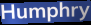
Humphry